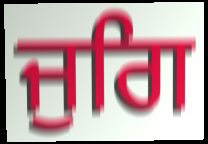
ਜੁਗਿ